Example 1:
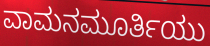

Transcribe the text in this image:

ವಾಮನಮೂರ್ತಿಯು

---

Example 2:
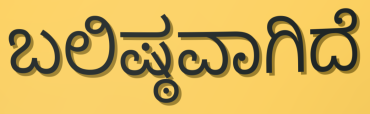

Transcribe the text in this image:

ಬಲಿಷ್ಠವಾಗಿದೆ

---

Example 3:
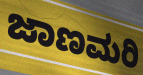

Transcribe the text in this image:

ಜಾಣಮರಿ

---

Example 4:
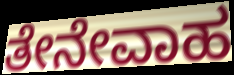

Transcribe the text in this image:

ತೇನೇವಾಹ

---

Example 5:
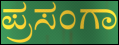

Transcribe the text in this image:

ಪ್ರಸಂಗಾ